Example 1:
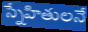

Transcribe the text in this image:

స్నేహితులనే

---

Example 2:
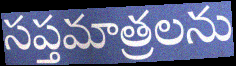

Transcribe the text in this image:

సప్తమాత్రలను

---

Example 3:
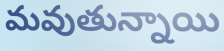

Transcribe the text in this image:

మవుతున్నాయి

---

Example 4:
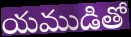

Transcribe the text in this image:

యముడితో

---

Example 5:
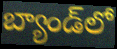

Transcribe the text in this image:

బ్యాండ్‌లో